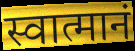
स्वात्मानं